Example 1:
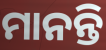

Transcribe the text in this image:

ମାନନ୍ତି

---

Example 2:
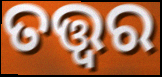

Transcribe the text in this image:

ତତ୍ତ୍ଵର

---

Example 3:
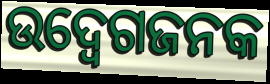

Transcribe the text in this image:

ଉଦ୍ବେଗଜନକ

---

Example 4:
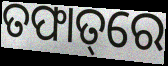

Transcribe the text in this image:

ତଫାତ୍‌ରେ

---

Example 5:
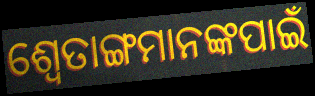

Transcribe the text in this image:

ଶ୍ୱେତାଙ୍ଗମାନଙ୍କପାଇଁ